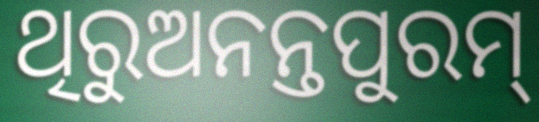
ଥିରୁଅନନ୍ତପୁରମ୍